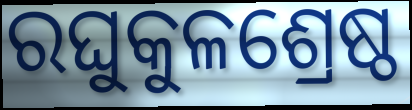
ରଘୁକୁଳଶ୍ରେଷ୍ଠ